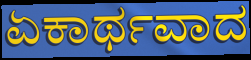
ಏಕಾರ್ಥವಾದ